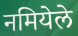
नमियेले